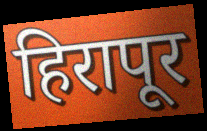
हिरापूर